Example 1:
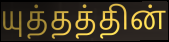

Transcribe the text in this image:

யுத்தத்தின்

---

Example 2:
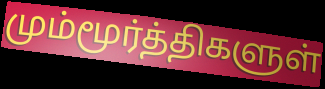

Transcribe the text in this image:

மும்மூர்த்திகளுள்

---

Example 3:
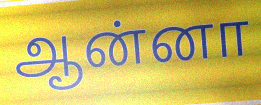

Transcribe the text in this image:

ஆன்னா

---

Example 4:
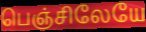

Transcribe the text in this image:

பெஞ்சிலேயே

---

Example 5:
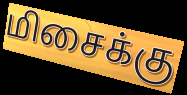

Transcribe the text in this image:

மிசைக்கு